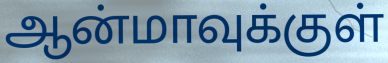
ஆன்மாவுக்குள்